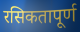
रसिकतापूर्ण